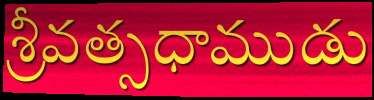
శ్రీవత్సధాముడు